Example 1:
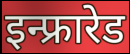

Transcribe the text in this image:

इन्फ्रारेड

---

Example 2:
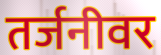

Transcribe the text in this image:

तर्जनीवर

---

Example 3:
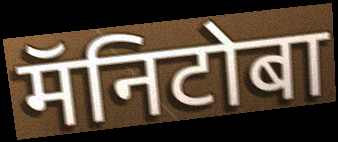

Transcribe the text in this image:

मॅनिटोबा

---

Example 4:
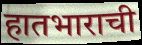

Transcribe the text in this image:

हातभाराची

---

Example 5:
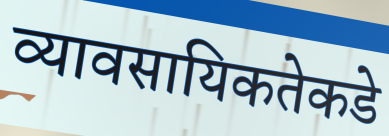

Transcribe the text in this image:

व्यावसायिकतेकडे